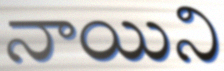
నాయిని